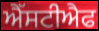
ਐੱਸਟੀਐਫ